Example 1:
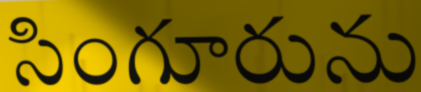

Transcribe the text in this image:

సింగూరును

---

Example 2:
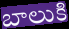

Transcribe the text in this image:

బాలుకి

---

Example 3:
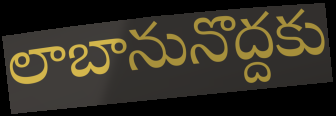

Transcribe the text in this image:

లాబానునొద్దకు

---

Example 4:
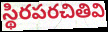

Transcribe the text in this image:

స్థిరపరచితివి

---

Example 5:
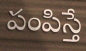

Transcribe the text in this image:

పంపిస్తే